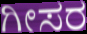
ಗೀಸರ